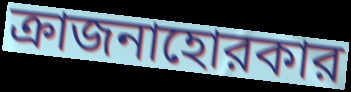
ক্রাজনাহোরকার